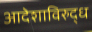
आदेशाविरुद्ध